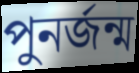
পুনর্জন্ম